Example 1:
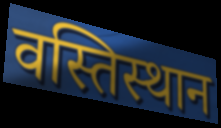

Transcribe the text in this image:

वस्तिस्थान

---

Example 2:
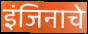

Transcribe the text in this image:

इंजिनाचे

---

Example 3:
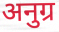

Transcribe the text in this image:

अनुग्र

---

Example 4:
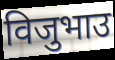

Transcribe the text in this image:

विजुभाउ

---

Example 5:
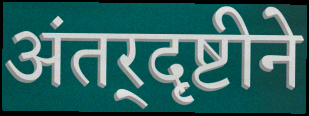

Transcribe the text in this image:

अंतर्दृष्टीने